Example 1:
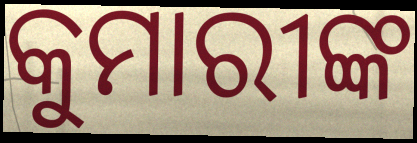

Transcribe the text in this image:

କୁମାରୀଙ୍କ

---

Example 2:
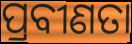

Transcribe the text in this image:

ପ୍ରବୀଣତା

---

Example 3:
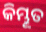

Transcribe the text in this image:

କିମ୍ଭୂତ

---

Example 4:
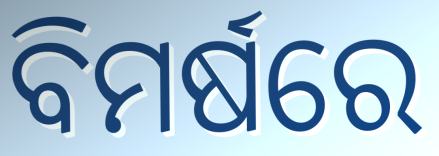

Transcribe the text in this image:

ବିମର୍ଷରେ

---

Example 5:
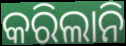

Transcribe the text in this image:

କରିଲାନି